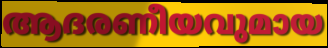
ആദരണീയവുമായ